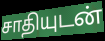
சாதியுடன்